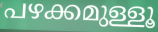
പഴക്കമുള്ളൂ